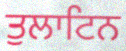
ਤੁਲਾਟਿਨ